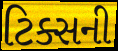
ટિક્સની